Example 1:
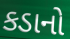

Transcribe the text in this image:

કડાનો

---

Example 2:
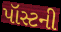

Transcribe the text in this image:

પૉસ્ટની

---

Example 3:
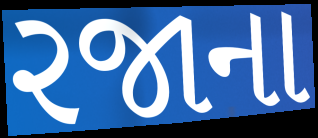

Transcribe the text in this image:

રજાના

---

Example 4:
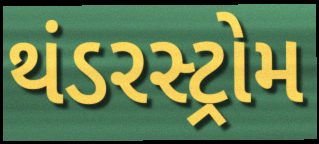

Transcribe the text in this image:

થંડરસ્ટ્રોમ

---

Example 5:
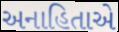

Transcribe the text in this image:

અનાહિતાએ